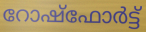
റോഷ്ഫോർട്ട്